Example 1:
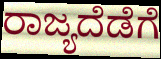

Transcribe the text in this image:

ರಾಜ್ಯದೆಡೆಗೆ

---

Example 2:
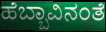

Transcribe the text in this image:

ಹೆಬ್ಬಾವಿನಂತೆ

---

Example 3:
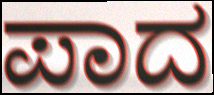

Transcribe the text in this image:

ಪಾದ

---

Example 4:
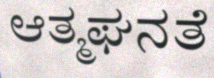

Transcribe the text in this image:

ಆತ್ಮಘನತೆ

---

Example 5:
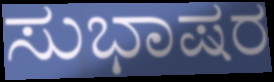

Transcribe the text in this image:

ಸುಭಾಷರ